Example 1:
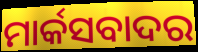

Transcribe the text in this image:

ମାର୍କସବାଦର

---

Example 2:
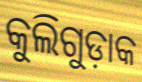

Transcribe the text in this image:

କୁଲିଗୁଡ଼ାକ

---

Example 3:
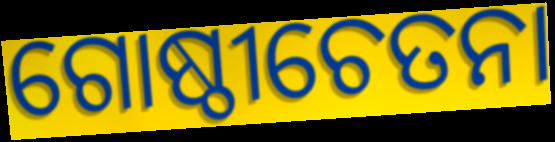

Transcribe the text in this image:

ଗୋଷ୍ଠୀଚେତନା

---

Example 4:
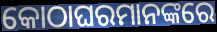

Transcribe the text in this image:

କୋଠାଘରମାନଙ୍କରେ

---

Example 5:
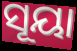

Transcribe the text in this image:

ସୂୟା